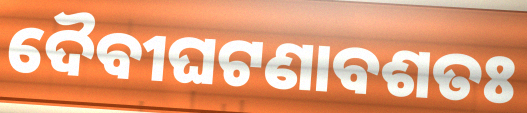
ଦୈବୀଘଟଣାବଶତଃ